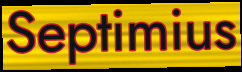
Septimius